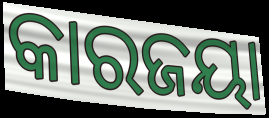
କାରଜୟା